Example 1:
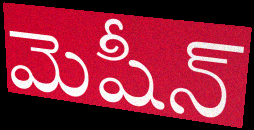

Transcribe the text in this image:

మెషీన్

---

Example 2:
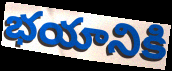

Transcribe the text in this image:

భయానికి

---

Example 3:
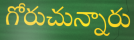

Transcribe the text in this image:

గోరుచున్నారు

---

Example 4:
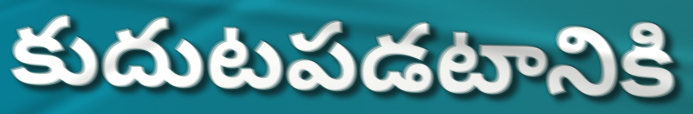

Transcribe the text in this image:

కుదుటపడటానికి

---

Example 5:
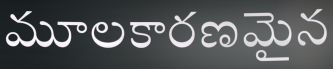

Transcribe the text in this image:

మూలకారణమైన